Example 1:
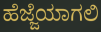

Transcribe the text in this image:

ಹೆಜ್ಜೆಯಾಗಲಿ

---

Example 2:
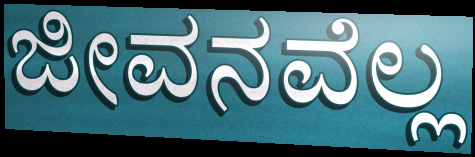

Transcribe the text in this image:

ಜೀವನವೆಲ್ಲ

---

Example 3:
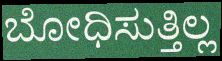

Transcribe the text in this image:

ಬೋಧಿಸುತ್ತಿಲ್ಲ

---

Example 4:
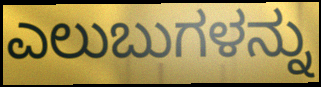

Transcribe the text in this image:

ಎಲುಬುಗಳನ್ನು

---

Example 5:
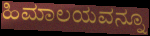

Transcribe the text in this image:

ಹಿಮಾಲಯವನ್ನೂ